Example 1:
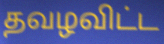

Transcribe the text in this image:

தவழவிட்ட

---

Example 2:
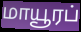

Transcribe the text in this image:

மாயூரப்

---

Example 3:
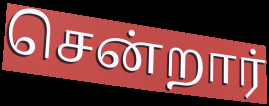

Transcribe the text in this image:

சென்றார்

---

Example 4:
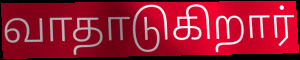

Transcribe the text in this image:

வாதாடுகிறார்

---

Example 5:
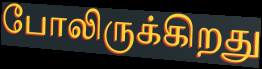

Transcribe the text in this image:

போலிருக்கிறது